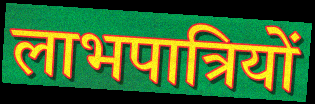
लाभपात्रियों